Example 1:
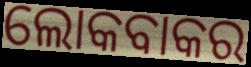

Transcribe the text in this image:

ଲୋକବାକର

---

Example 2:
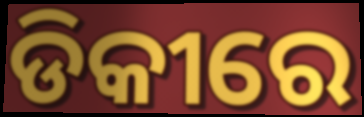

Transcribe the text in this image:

ଡିକୀରେ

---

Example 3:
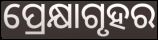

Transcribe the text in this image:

ପ୍ରେକ୍ଷାଗୃହର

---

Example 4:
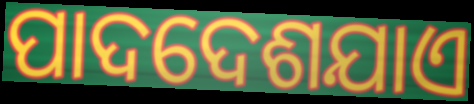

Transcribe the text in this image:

ପାଦଦେଶଯାଏ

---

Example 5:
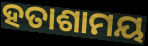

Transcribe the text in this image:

ହତାଶାମୟ